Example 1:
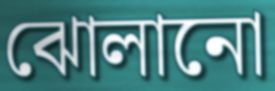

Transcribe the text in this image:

ঝোলানো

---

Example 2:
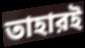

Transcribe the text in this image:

তাহারই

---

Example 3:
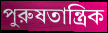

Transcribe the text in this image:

পুরুষতান্ত্রিক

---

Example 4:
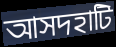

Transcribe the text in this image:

আসদহাটি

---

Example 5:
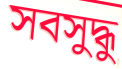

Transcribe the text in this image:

সবসুদ্ধু